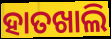
ହାତଖାଲି